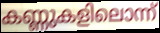
കണ്ണുകളിലൊന്ന്